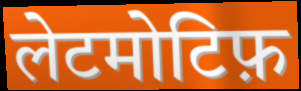
लेटमोटिफ़